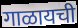
गाळायची